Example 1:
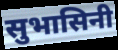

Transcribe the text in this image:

सुभासिनी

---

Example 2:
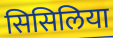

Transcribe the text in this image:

सिसिलिया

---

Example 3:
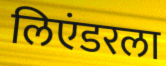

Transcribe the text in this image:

लिएंडरला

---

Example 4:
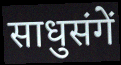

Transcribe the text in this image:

साधुसंगें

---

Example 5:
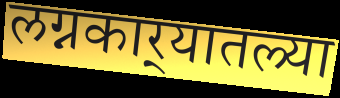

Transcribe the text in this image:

लग्नकार्यातल्या